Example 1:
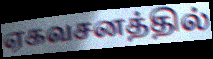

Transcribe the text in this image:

ஏகவசனத்தில்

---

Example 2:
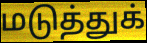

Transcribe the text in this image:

மடுத்துக்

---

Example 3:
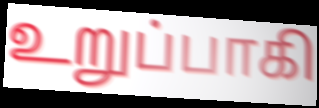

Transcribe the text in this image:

உறுப்பாகி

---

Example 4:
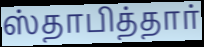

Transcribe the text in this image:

ஸ்தாபித்தார்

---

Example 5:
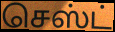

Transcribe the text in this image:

செஸ்ட்